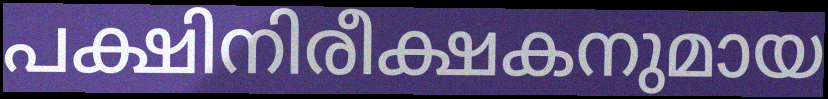
പക്ഷിനിരീക്ഷകനുമായ